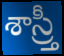
శాస్ర్తీ